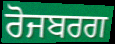
ਰੋਜਬਰਗ